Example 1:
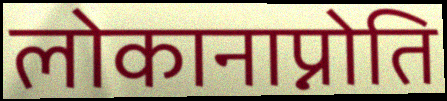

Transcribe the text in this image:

लोकानाप्नोति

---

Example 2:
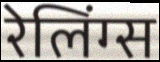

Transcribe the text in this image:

रेलिंग्स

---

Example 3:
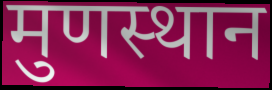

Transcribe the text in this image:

मुणस्थान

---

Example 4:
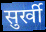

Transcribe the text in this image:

सुर्खी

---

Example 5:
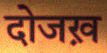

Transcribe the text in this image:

दोजख़